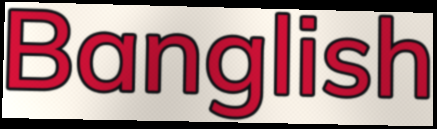
Banglish